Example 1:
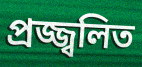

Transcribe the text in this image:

প্রজ্জ্বলিত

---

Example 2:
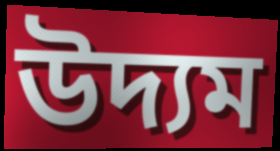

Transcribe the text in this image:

উদ্যম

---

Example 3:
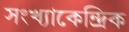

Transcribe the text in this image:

সংখ্যাকেন্দ্রিক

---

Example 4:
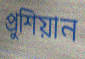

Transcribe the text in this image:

প্রুশিয়ান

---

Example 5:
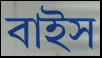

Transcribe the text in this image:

বাইস